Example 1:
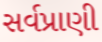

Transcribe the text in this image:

સર્વપ્રાણી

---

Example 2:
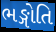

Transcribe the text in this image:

ભઙ્ગોતિ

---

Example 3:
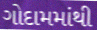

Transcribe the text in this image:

ગોદામમાંથી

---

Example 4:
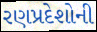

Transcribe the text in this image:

રણપ્રદેશોની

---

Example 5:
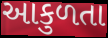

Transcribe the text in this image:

આકુળતા